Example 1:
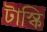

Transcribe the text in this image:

টাস্কি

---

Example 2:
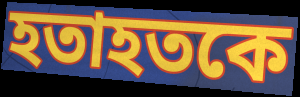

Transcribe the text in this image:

হতাহতকে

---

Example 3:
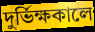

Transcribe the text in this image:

দুর্ভিক্ষকালে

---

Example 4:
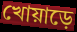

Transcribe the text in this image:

খোয়াড়ে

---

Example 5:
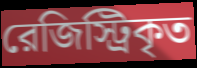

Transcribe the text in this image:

রেজিস্ট্রিকৃত